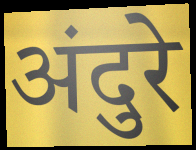
अंदुरे